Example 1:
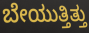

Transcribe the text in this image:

ಬೇಯುತ್ತಿತ್ತು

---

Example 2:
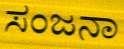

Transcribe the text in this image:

ಸಂಜನಾ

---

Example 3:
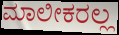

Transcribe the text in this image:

ಮಾಲೀಕರಲ್ಲ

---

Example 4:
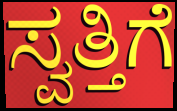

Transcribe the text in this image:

ಸ್ವತ್ತಿಗೆ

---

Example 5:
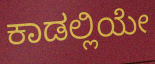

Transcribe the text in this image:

ಕಾಡಲ್ಲಿಯೇ